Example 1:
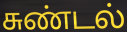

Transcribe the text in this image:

சுண்டல்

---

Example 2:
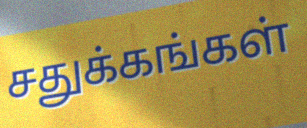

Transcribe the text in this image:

சதுக்கங்கள்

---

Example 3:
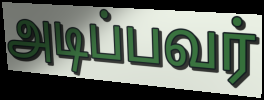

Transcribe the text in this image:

அடிப்பவர்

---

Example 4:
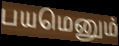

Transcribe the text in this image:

பயமெனும்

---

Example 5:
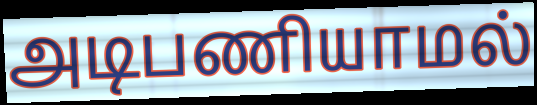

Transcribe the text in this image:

அடிபணியாமல்